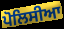
ਪੋਲਿਸੀਆ